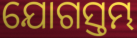
ଯୋଗସ୍ତମ୍ଭ